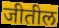
जीतील